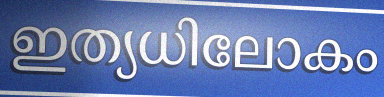
ഇത്യധിലോകം